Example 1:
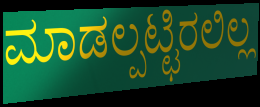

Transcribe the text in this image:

ಮಾಡಲ್ಪಟ್ಟಿರಲಿಲ್ಲ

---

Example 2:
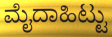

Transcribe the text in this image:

ಮೈದಾಹಿಟ್ಟು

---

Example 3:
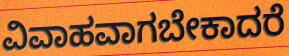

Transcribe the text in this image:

ವಿವಾಹವಾಗಬೇಕಾದರೆ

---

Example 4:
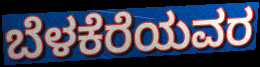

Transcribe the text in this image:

ಬೆಳಕೆರೆಯವರ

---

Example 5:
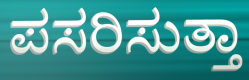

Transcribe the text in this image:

ಪಸರಿಸುತ್ತಾ